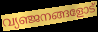
വ്യഞ്ജനങ്ങളോട്